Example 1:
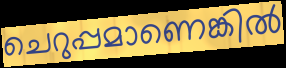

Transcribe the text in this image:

ചെറുപ്പമാണെങ്കിൽ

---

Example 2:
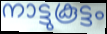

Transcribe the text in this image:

നാട്ടുകൂട്ടം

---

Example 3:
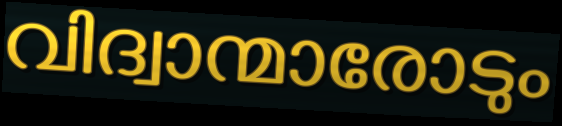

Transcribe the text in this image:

വിദ്വാന്മാരോടും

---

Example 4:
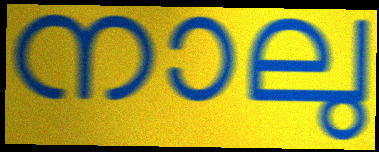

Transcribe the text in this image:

നാലു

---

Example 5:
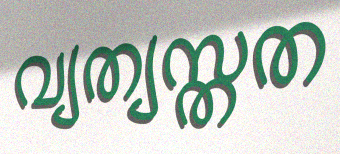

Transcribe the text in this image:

വ്യത്യസ്തത